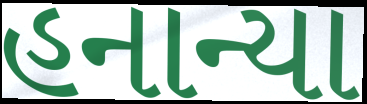
હનાન્યા